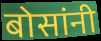
बोसांनी